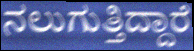
ನಲುಗುತ್ತಿದ್ದಾರೆ